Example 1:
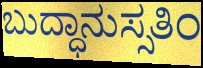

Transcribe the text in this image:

ಬುದ್ಧಾನುಸ್ಸತಿಂ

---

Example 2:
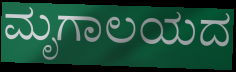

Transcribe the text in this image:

ಮೃಗಾಲಯದ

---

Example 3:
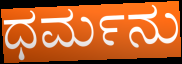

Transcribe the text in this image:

ಧರ್ಮನು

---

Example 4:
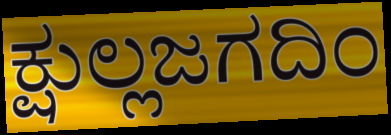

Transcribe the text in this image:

ಕ್ಷುಲ್ಲಜಗದಿಂ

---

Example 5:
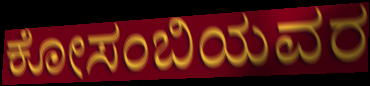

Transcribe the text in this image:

ಕೋಸಂಬಿಯವರ